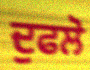
ਦੁਫਲੋ